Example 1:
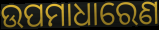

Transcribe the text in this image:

ଉପମାଧାରେଣ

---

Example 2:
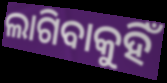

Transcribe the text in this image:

ଲାଗିବାକୁହିଁ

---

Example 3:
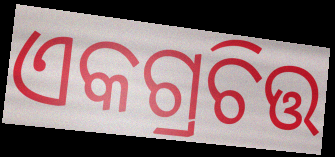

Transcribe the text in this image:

ଏକଗ୍ରଚିତ୍ତ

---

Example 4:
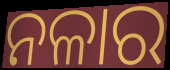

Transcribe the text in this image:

ନଳାର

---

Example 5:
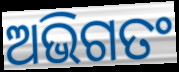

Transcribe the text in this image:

ଅଭିଗତଂ